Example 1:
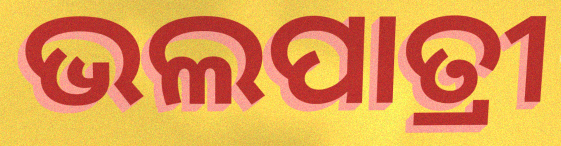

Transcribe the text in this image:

ଭଲପାତ୍ରୀ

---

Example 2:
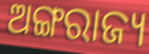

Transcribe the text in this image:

ଅଙ୍ଗରାଜ୍ୟ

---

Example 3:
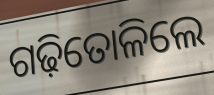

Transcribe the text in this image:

ଗଢ଼ିତୋଳିଲେ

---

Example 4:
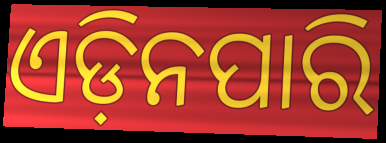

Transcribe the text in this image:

ଏଡ଼ିନପାରି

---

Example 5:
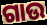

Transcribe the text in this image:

ଗାଉ